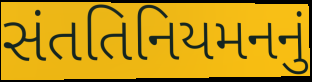
સંતતિનિયમનનું